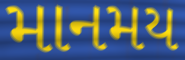
માનમય